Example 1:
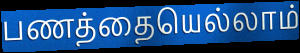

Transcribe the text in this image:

பணத்தையெல்லாம்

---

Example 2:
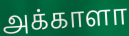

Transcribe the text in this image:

அக்காளா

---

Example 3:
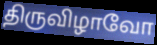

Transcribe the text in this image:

திருவிழாவோ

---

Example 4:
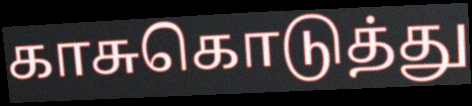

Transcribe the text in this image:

காசுகொடுத்து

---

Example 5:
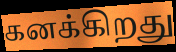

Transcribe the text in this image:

கனக்கிறது